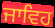
ਜਾਵਿਹ